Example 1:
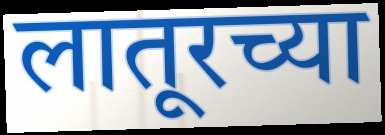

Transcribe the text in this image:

लातूरच्या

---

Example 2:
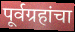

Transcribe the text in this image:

पूर्वग्रहांचा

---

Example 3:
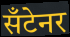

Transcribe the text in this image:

सँटेनर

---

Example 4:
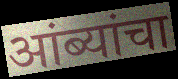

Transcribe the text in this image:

आंब्यांचा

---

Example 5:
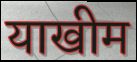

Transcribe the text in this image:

याखीम